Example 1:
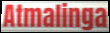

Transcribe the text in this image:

Atmalinga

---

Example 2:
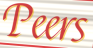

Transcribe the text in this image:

Peers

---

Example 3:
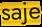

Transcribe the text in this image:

saje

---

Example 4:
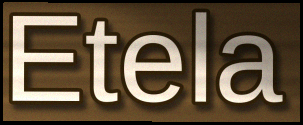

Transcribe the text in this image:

Etela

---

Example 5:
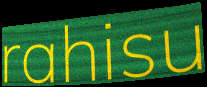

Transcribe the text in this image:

rahisu